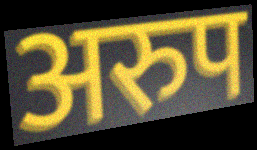
अरुप